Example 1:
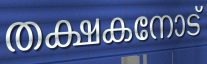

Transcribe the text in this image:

തക്ഷകനോട്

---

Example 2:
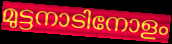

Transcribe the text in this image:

മുട്ടനാടിനോളം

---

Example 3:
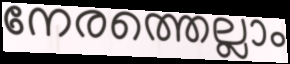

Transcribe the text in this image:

നേരത്തെല്ലാം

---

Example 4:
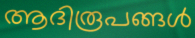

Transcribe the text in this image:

ആദിരൂപങ്ങൾ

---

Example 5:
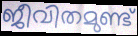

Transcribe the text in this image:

ജീവിതമുണ്ട്